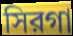
সিরগা